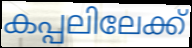
കപ്പലിലേക്ക്